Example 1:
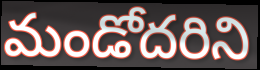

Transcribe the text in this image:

మండోదరిని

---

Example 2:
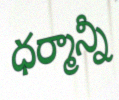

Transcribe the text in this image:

ధర్మాన్నీ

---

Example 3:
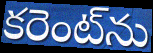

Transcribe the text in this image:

కరెంట్‌ను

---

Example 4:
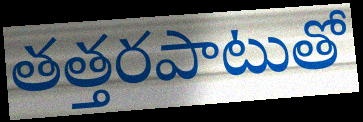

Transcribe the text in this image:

తత్తరపాటుతో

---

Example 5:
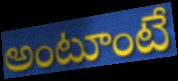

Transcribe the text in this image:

అంటూంటే